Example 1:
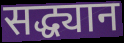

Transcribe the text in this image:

सद्ध्यान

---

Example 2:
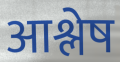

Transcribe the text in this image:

आश्लेष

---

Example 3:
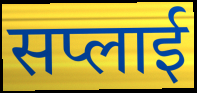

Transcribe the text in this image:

सप्‍लाई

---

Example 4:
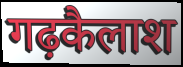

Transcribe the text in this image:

गढ़कैलाश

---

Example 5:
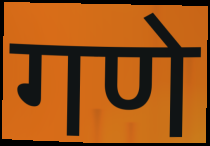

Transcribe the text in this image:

गणे